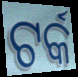
ଟର୍କ